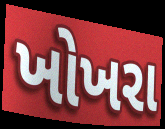
ખોખરા